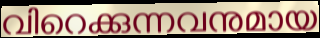
വിറെക്കുന്നവനുമായ